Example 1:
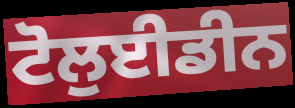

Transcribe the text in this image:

ਟੋਲੁਈਡੀਨ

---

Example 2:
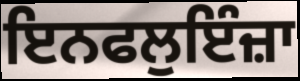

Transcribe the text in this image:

ਇਨਫਲੁਇੰਜ਼ਾ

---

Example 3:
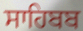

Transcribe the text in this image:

ਸਾਹਿਬਬ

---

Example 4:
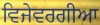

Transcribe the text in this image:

ਵਿਜੇਵਰਗੀਆ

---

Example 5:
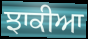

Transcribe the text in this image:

ਝਾਕੀਆ